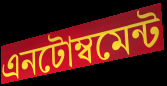
এনটোম্বমেন্ট